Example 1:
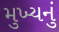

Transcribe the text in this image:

મુખ્યનું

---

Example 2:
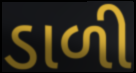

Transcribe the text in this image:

ડાળી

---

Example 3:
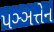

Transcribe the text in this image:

પઞ્ઞત્તેન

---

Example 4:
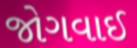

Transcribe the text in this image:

જોગવાઈ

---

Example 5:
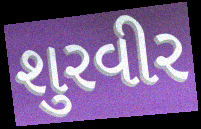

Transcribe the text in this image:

શુરવીર